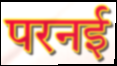
परनई